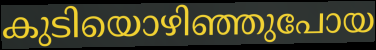
കുടിയൊഴിഞ്ഞുപോയ